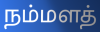
நம்மளத்